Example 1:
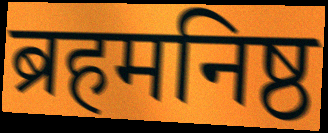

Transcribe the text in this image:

ब्रहमनिष्ठ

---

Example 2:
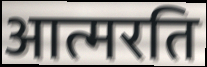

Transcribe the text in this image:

आत्मरति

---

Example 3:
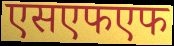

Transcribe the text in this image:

एसएफएफ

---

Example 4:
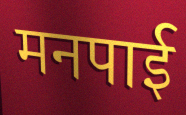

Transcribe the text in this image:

मनपाई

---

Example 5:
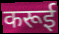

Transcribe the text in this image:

करूई